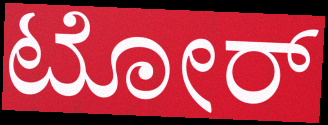
ಟೋರ್